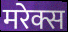
मरेक्स